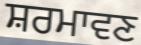
ਸ਼ਰਮਾਵਣ